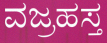
ವಜ್ರಹಸ್ತ